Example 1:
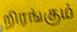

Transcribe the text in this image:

றிரங்கும்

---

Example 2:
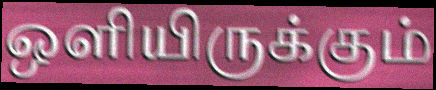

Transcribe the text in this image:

ஒளியிருக்கும்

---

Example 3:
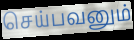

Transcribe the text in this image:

செய்பவனும்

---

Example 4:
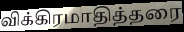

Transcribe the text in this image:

விக்கிரமாதித்தரை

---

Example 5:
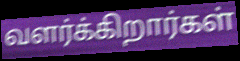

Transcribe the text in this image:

வளர்க்கிறார்கள்